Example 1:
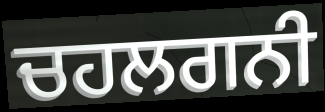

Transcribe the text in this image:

ਚਹਲਗਨੀ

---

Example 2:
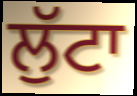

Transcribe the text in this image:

ਲੁੱਟਾ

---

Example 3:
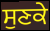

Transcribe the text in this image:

ਸੁਣਕੇ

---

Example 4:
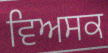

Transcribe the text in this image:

ਵਿਅਸਕ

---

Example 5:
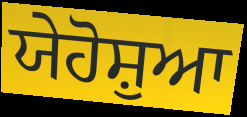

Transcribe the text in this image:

ਯੇਹੋਸ਼ੁਆ